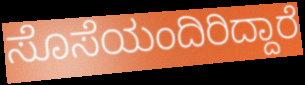
ಸೊಸೆಯಂದಿರಿದ್ದಾರೆ